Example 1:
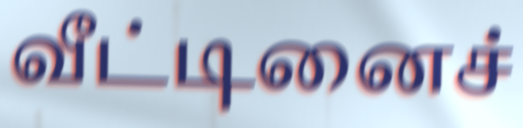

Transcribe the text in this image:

வீட்டினைச்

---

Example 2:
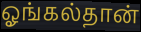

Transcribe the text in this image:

ஓங்கல்தான்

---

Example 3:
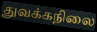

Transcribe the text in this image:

துவக்கநிலை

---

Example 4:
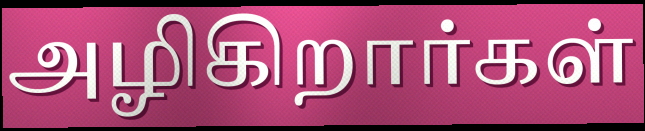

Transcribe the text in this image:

அழிகிறார்கள்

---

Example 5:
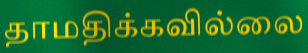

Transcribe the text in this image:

தாமதிக்கவில்லை